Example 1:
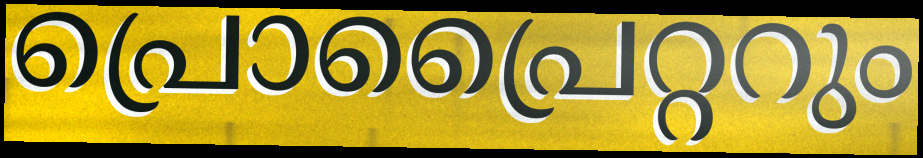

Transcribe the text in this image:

പ്രൊപ്രൈറ്ററും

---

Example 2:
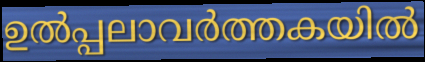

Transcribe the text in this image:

ഉൽപ്പലാവർത്തകയിൽ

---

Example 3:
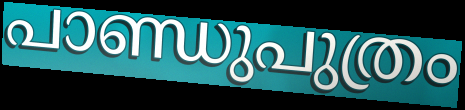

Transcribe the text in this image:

പാണ്ഡുപുത്രം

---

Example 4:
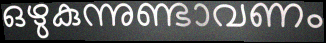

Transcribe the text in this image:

ഒഴുകുന്നുണ്ടാവണം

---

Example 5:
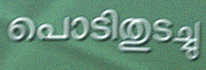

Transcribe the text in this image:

പൊടിതുടച്ചു